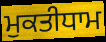
ਮੁਕਤੀਧਾਮ